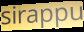
sirappu